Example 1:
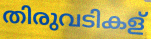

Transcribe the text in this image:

തിരുവടികള്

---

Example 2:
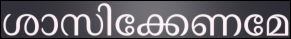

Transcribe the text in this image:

ശാസിക്കേണമേ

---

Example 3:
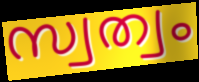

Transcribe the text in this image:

സ്വത്വം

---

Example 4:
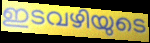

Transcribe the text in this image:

ഇടവഴിയുടെ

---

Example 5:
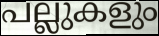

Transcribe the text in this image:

പല്ലുകളും